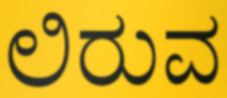
ಲಿರುವ